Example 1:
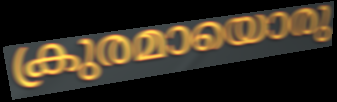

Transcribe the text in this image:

ക്രുരമായൊരു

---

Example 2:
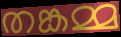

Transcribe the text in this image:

തങ്കമ്മ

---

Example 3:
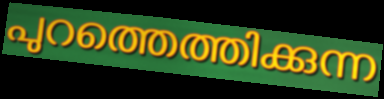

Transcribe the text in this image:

പുറത്തെത്തിക്കുന്ന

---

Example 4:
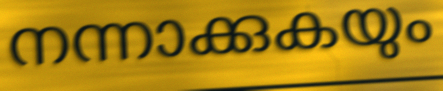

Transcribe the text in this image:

നന്നാക്കുകയും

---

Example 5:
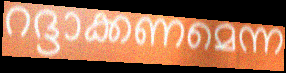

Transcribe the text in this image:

റദ്ദാക്കണമെന്ന